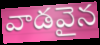
వాడవైన